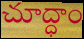
చూద్ధాం